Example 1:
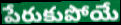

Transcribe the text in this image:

పేరుకుపోయే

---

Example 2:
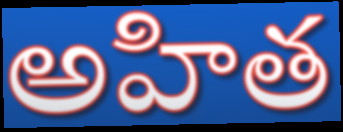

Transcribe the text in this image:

అహిత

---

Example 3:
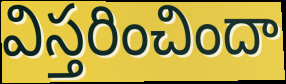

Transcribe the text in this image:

విస్తరించిందా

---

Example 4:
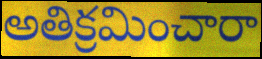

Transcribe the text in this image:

అతిక్రమించారా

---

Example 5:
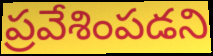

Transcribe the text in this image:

ప్రవేశింపడని